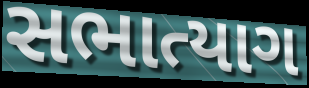
સભાત્યાગ